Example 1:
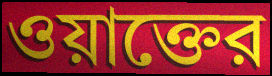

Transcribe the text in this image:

ওয়াক্তের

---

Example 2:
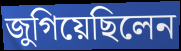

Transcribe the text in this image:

জুগিয়েছিলেন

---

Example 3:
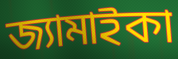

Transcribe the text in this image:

জ্যামাইকা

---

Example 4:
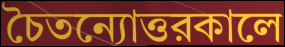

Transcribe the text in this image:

চৈতন্যোত্তরকালে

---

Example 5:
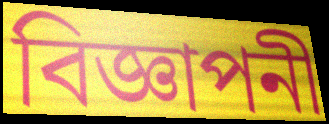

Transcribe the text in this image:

বিজ্ঞাপনী